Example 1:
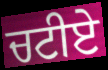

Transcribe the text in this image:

ਚਟੀਏ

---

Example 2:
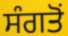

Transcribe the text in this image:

ਸੰਗਤੋਂ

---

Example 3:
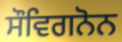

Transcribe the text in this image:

ਸੌਵਿਗਨੋਨ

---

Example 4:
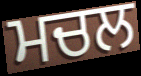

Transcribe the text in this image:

ਮਚਲ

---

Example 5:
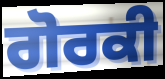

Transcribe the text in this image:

ਗੋਰਕੀ